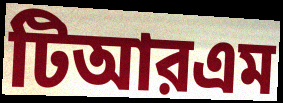
টিআরএম